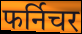
फर्निचर